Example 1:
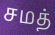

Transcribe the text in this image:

சமத்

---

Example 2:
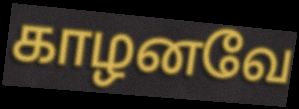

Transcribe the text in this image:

காழனவே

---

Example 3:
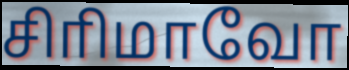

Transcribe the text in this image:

சிரிமாவோ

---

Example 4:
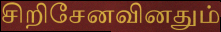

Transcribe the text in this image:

சிறிசேனவினதும்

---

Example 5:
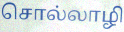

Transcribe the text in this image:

சொல்லாழி